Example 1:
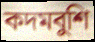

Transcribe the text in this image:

কদমবুশি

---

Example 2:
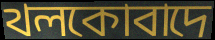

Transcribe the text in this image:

থলকোবাদে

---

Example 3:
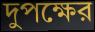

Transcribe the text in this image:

দুপক্ষের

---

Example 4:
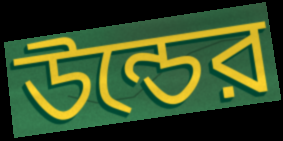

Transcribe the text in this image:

উন্ডের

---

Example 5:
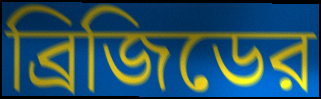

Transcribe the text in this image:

ব্রিজিডের